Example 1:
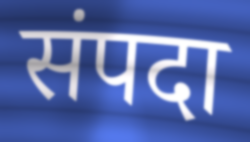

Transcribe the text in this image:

संपदा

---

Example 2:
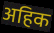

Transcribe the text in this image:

अहिक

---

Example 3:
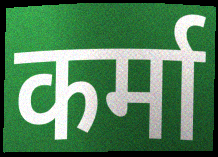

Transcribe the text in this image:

कर्मा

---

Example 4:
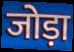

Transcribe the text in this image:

जोड़ा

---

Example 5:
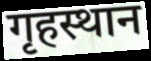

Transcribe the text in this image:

गृहस्थान